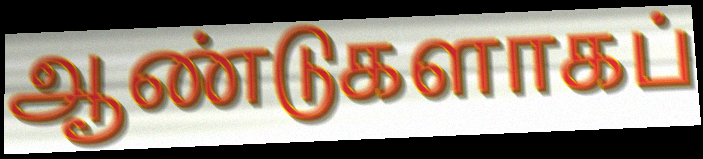
ஆண்டுகளாகப்